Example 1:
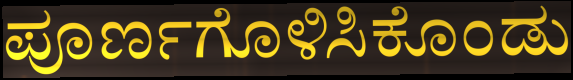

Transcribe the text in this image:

ಪೂರ್ಣಗೊಳಿಸಿಕೊಂಡು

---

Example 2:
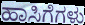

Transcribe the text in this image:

ಹಾಸಿಗೆಗಳು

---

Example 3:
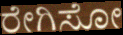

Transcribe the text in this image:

ರೇಗಿಸೋ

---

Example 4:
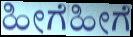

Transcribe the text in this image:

ಹೀಗೆಹೀಗೆ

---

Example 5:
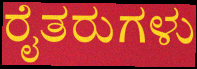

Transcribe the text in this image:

ರೈತರುಗಳು